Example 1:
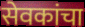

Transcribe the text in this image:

सेवकांचा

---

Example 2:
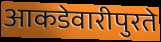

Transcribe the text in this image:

आकडेवारीपुरते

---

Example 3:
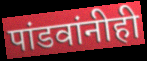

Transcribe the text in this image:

पांडवांनीही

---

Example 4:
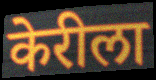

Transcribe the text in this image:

केरीला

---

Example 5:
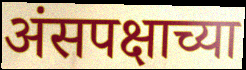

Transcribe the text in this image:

अंसपक्षाच्या